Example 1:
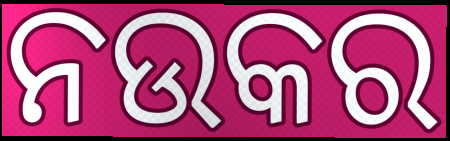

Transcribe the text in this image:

ନଉକର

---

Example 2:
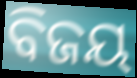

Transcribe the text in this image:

ବିଜୟ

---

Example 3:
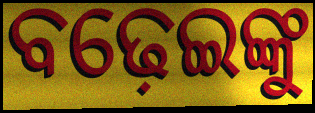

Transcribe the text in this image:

ବଢ଼େଇଙ୍କୁ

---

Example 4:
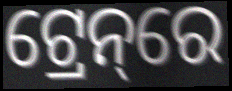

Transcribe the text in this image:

ଟ୍ରେନ୍‌ରେ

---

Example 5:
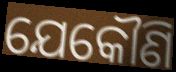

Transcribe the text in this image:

ଯେକୌଣି